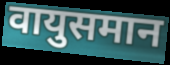
वायुसमान